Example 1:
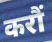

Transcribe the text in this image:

करौं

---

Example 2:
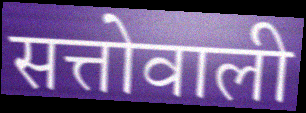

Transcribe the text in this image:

सत्तोवाली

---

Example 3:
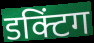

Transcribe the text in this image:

डक्टिंग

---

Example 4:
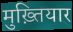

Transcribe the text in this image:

मुख़्तियार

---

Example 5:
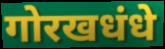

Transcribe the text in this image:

गोरखधंधे